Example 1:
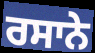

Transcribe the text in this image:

ਰਸਾਨੇ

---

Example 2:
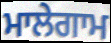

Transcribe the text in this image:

ਮਾਲੇਗਾਮ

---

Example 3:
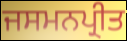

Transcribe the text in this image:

ਜਸਮਨਪ੍ਰੀਤ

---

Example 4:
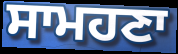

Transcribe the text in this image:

ਸਾਮਹਣਾ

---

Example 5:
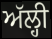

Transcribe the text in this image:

ਅੱਲ੍ਹੀ